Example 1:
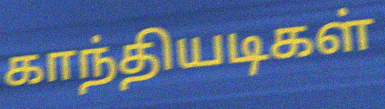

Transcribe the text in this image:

காந்தியடிகள்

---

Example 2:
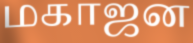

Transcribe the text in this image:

மகாஜன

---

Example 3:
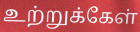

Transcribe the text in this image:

உற்றுக்கேள்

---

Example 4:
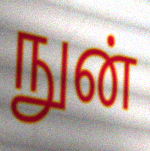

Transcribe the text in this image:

நுன்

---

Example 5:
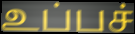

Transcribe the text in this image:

உப்பச்